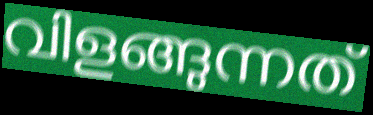
വിളങ്ങുന്നത്